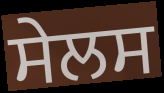
ਸੇਲਸ